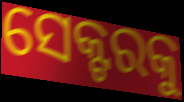
ସେକ୍ଟରକୁ